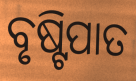
ବୃଷ୍ଟିପାତ